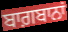
ਬਾਗ਼ਬਾਨਾਂ